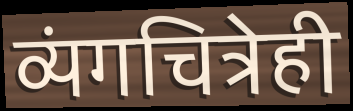
व्यंगचित्रेही